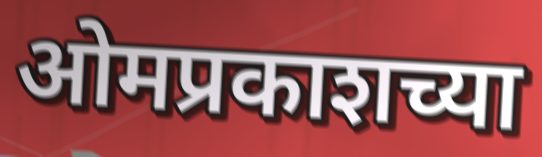
ओमप्रकाशच्या